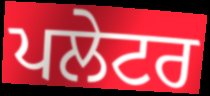
ਪਲੇਟਰ